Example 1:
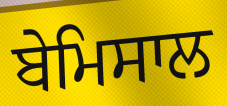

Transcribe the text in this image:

ਬੇਮਿਸਾਲ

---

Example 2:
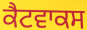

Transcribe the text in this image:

ਕੈਟਵਾਕਸ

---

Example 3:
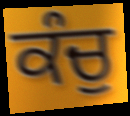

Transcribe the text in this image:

ਕੰਚੁ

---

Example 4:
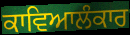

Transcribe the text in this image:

ਕਾਵਿਆਲੰਕਾਰ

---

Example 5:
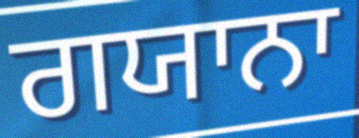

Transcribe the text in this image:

ਗਯਾਨਾ